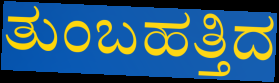
ತುಂಬಹತ್ತಿದ